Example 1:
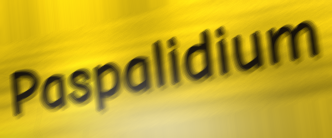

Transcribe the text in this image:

Paspalidium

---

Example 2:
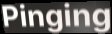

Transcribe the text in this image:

Pinging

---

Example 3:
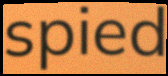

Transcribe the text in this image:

spied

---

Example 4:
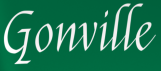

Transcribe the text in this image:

Gonville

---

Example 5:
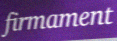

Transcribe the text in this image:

firmament